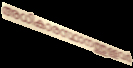
അധികാരസ്ഥാനത്തുള്ളവർ